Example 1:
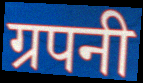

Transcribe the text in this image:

ग्रपनी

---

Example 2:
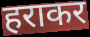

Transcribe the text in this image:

हराकर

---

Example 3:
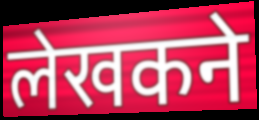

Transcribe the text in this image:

लेखकने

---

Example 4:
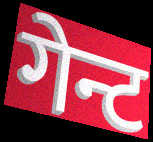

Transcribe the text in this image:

गेन्ट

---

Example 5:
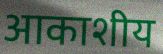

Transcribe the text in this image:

आकाशीय